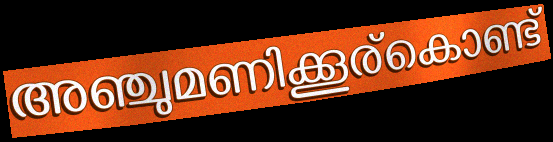
അഞ്ചുമണിക്കൂര്കൊണ്ട്